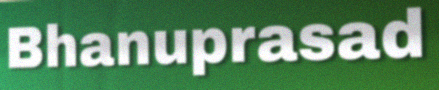
Bhanuprasad